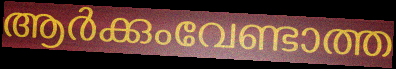
ആർക്കുംവേണ്ടാത്ത